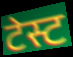
टेस्ट